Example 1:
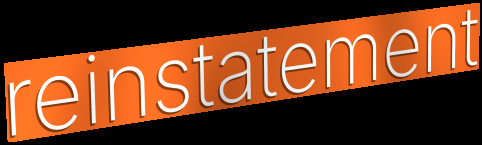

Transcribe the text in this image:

reinstatement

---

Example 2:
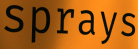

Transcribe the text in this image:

sprays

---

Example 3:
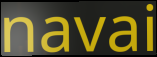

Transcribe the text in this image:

navai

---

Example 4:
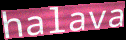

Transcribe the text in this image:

halava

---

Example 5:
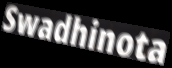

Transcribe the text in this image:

Swadhinota